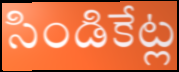
సిండికేట్ల